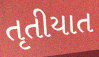
તૃતીયાત